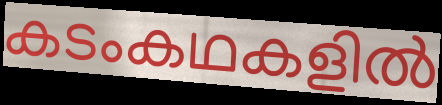
കടംകഥകളിൽ